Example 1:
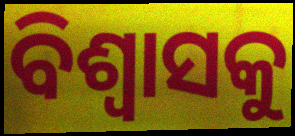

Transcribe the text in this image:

ବିଶ୍ୱାସକୁ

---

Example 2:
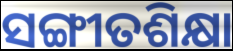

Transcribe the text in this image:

ସଙ୍ଗୀତଶିକ୍ଷା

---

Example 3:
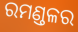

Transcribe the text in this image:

ରମଣ୍ଡଳର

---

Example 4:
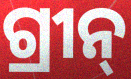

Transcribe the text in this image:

ଗ୍ରୀନ୍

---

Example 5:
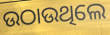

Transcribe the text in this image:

ଉଠାଉଥିଲେ